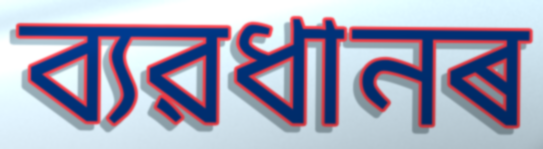
ব্যৱধানৰ